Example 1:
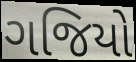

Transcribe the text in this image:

ગજિયો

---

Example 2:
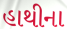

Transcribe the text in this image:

હાથીના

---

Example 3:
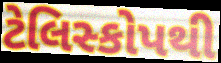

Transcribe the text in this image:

ટેલિસ્કોપથી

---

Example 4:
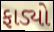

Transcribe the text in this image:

ફાડ્યો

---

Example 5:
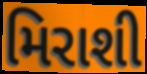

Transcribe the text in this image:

મિરાશી